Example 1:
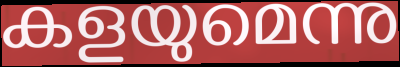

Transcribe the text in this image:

കളയുമെന്നു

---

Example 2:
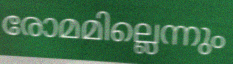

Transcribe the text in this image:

രോമമില്ലെന്നും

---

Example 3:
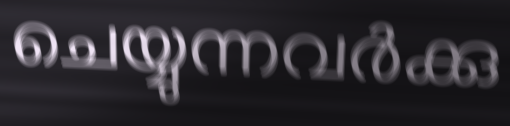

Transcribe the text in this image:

ചെയ്യുന്നവർക്കു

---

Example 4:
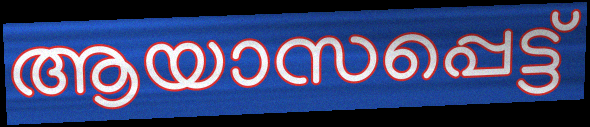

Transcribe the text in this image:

ആയാസപ്പെട്ട്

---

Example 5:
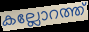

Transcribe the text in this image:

കല്ലോറത്ത്